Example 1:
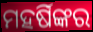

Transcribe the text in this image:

ମହର୍ଷିଙ୍କର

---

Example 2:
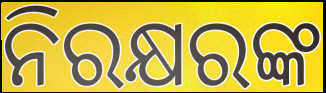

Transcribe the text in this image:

ନିରକ୍ଷରଙ୍କ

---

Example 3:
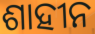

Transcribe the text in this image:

ଶାହୀନ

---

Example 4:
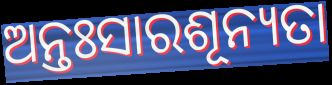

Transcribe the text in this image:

ଅନ୍ତଃସାରଶୂନ୍ୟତା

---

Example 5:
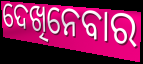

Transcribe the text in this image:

ଦେଖିନେବାର